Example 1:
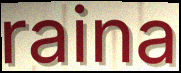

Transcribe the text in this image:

raina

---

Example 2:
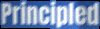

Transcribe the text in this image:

Principled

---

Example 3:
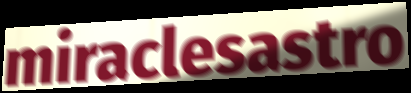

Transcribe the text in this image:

miraclesastro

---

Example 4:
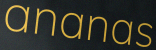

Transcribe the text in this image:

ananas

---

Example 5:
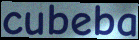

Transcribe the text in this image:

cubeba